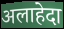
अलाहेदा